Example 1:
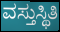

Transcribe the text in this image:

ವಸ್ತುಸ್ಥಿತಿ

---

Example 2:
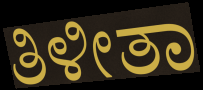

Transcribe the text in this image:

ತಿಳೀತಾ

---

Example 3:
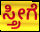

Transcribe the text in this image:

ಸ್ತ್ರೀಗೆ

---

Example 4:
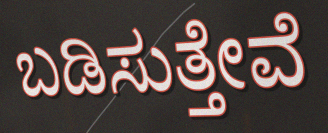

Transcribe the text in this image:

ಬಡಿಸುತ್ತೇವೆ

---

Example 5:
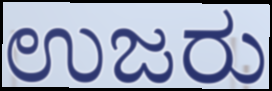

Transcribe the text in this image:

ಉಜರು